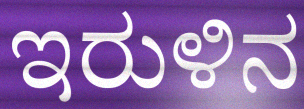
ಇರುಳಿನ